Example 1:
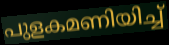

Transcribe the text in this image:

പുളകമണിയിച്ച്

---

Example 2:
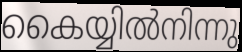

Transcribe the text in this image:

കൈയ്യിൽനിന്നു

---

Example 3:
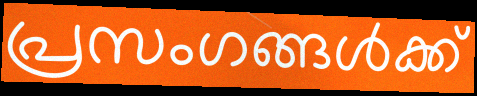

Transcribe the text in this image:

പ്രസംഗങ്ങൾക്ക്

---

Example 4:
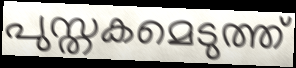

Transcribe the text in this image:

പുസ്തകമെടുത്ത്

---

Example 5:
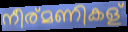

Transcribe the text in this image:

നീര്മണികള്